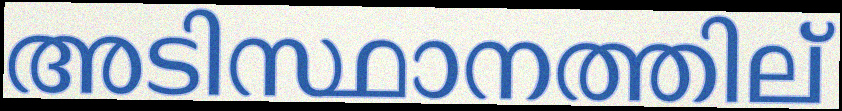
അടിസ്ഥാനത്തില്